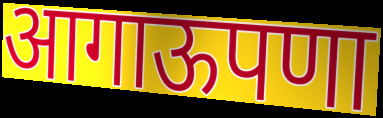
आगाऊपणा